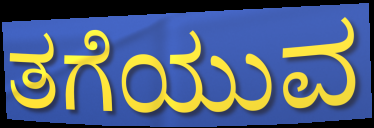
ತಗೆಯುವ